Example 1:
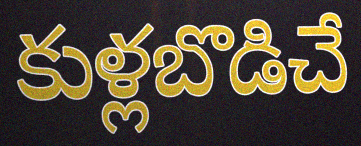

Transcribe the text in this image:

కుళ్లబొడిచే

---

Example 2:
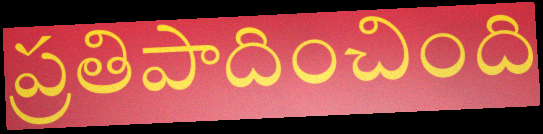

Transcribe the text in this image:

ప్రతిపాదించింది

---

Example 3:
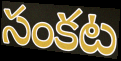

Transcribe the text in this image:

సంకట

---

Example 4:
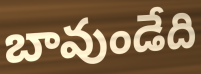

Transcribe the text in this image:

బావుండేది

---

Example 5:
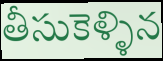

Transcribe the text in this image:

తీసుకెళ్ళిన